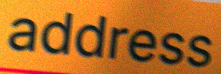
address